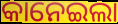
କାନେଇଲା